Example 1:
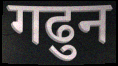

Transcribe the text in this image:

गढुन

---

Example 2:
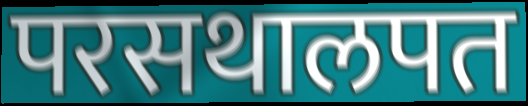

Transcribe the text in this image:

परसथालपत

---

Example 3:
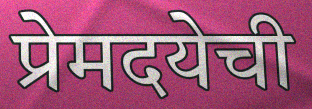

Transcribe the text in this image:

प्रेमदयेची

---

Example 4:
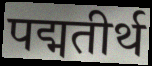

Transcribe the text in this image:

पद्मतीर्थ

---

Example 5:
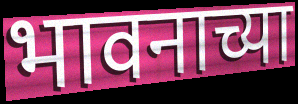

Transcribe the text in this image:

भावनाच्या